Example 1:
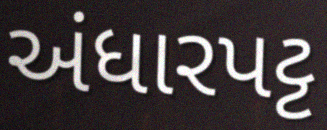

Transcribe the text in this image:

અંધારપટ્ટ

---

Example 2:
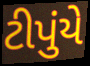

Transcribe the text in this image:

ટીપુંયે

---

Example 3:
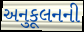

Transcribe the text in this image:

અનુકૂલનની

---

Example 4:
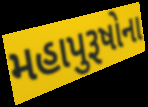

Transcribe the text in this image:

મહાપુરૂષોના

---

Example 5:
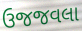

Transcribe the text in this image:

ઉજજવલા